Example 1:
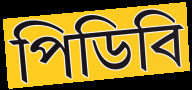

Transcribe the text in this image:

পিডিবি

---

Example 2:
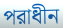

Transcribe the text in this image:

পরাধীন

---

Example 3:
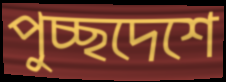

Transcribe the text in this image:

পুচ্ছদেশে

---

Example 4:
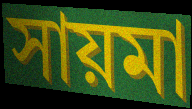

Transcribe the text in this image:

সায়মা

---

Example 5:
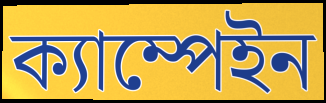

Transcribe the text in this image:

ক্যাম্পেইন